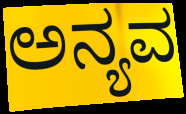
ಅನ್ಯವ